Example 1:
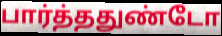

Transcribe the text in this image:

பார்த்ததுண்டோ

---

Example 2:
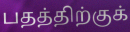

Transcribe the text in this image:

பதத்திற்குக்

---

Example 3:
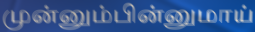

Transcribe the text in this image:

முன்னும்பின்னுமாய்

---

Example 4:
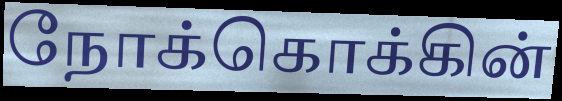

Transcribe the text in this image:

நோக்கொக்கின்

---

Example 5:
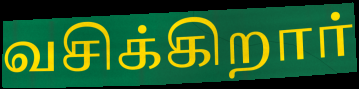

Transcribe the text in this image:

வசிக்கிறார்